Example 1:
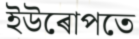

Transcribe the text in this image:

ইউৰোপতে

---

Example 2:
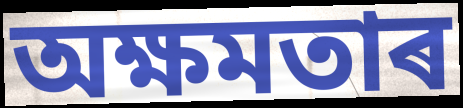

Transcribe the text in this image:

অক্ষমতাৰ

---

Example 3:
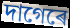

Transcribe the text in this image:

দাগেৰে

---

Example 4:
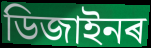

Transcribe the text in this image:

ডিজাইনৰ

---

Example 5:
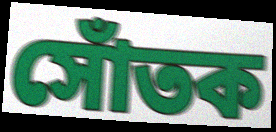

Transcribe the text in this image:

সোঁতক